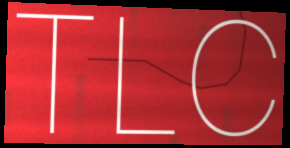
TLC